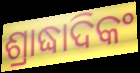
ଶ୍ରାଦ୍ଧାଦିକଂ